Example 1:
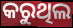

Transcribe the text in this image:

କରୁଥିଲ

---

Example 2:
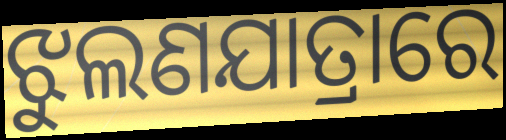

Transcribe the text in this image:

ଝୁଲଣଯାତ୍ରାରେ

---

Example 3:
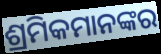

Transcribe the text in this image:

ଶ୍ରମିକମାନଙ୍କର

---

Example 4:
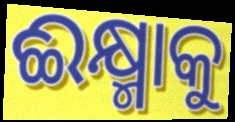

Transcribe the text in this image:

ଈକ୍ଷ୍ମାକୁ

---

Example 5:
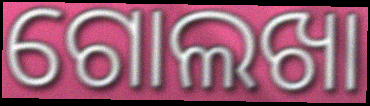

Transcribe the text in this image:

ଗୋଲଖା